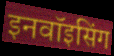
इनवॉइसिंग